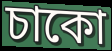
চাকো